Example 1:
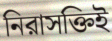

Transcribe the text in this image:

নিরাসক্তিই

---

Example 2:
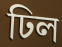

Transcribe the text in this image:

ঢিল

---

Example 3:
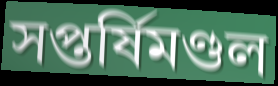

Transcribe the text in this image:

সপ্তর্ষিমণ্ডল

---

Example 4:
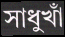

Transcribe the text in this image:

সাধুখাঁ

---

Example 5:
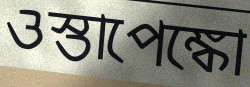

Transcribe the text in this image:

ওস্তাপেঙ্কো